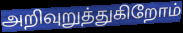
அறிவுறுத்துகிறோம்